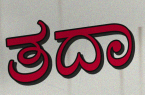
ತದಾ